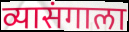
व्यासंगाला